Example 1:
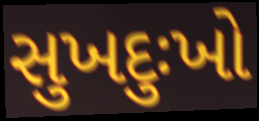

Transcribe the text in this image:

સુખદુઃખો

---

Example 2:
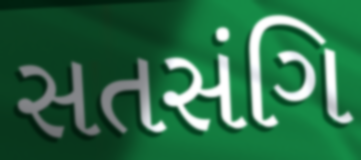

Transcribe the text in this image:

સતસંગિ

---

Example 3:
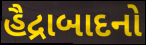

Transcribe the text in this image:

હૈદ્રાબાદનો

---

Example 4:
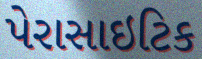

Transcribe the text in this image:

પેરાસાઇટિક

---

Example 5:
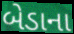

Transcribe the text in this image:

બેડાના